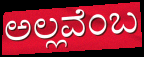
ಅಲ್ಲವೆಂಬ